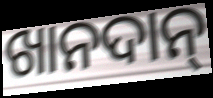
ଖାନଦାନ୍